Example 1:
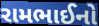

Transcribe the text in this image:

રામભાઈનો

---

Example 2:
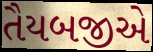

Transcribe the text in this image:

તૈયબજીએ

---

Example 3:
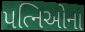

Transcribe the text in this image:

પત્નિઓના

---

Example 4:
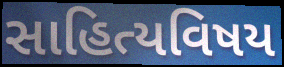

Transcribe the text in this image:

સાહિત્યવિષય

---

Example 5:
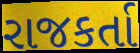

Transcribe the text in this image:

રાજકર્તા